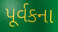
પૂર્વકના